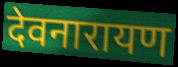
देवनारायण